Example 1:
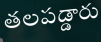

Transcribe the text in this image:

తలపడ్డారు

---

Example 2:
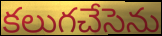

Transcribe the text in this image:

కలుగచేసెను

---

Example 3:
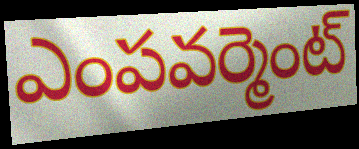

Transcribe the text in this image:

ఎంపవర్మెంట్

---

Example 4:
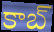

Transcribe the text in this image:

కాబ్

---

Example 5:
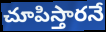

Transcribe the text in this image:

చూపిస్తారనే